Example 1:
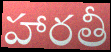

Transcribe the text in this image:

హారతీ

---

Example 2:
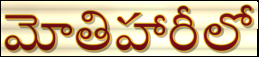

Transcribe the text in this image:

మోతిహారీలో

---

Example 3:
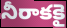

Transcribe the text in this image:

నీరాకకై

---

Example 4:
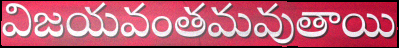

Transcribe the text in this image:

విజయవంతమవుతాయి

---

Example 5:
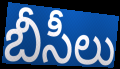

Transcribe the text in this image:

బీసీలు